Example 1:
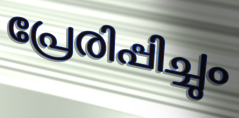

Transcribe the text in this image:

പ്രേരിപ്പിച്ചും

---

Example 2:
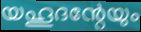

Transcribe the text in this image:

യഹൂദന്റേയും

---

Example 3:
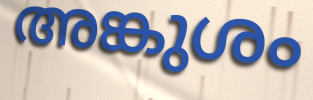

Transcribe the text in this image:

അങ്കുശം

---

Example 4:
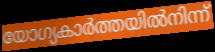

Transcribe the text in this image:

യോഗ്യകാർത്തയിൽനിന്ന്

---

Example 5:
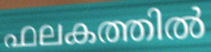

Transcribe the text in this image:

ഫലകത്തിൽ